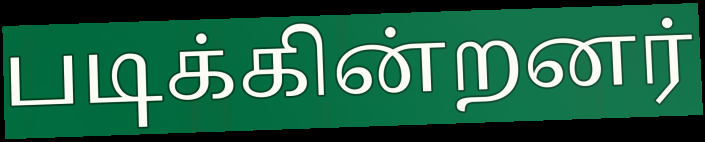
படிக்கின்றனர்